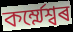
কৰ্ম্মেশ্বৰ